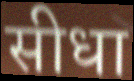
सीधा